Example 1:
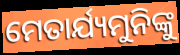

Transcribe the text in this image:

ମେତାର୍ଯ୍ୟମୁନିଙ୍କୁ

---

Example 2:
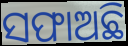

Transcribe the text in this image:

ସଫାଅଛି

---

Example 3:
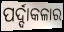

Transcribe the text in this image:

ପର୍ଦ୍ଦାକଳାର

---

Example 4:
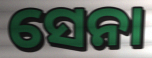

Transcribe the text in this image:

ସେନା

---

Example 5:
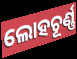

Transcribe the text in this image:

ଲୋହଚୂର୍ଣ୍ଣ